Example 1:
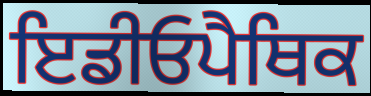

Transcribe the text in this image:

ਇਡੀਓਪੈਥਿਕ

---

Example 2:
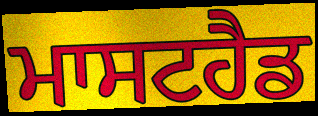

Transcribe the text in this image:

ਮਾਸਟਹੈਡ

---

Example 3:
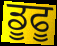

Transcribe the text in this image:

ਡੂਫੂ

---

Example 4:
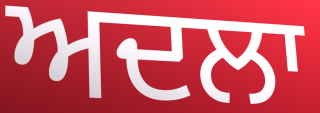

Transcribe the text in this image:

ਅਦਲਾ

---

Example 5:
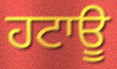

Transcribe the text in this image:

ਹਟਾਊ